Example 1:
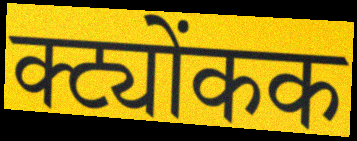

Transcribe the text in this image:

क्ट्योंकक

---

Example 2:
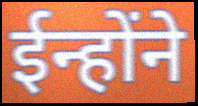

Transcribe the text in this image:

ईन्होंने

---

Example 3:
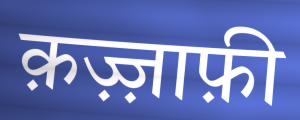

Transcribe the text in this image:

क़ज़्ज़ाफ़ी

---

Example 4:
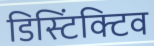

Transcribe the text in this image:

डिस्टिंक्टिव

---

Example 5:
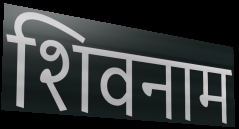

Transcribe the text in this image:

शिवनाम